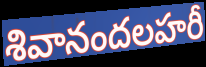
శివానందలహరీ